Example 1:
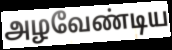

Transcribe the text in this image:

அழவேண்டிய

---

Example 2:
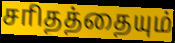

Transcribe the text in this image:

சரிதத்தையும்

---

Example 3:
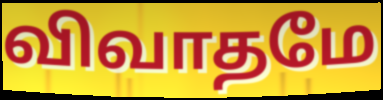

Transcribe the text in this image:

விவாதமே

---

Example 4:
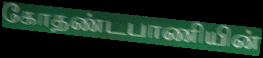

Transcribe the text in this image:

கோதண்டபாணியின்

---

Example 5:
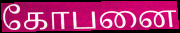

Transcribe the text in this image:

கோபனை